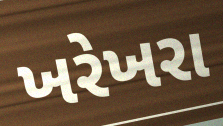
ખરેખરા